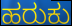
ಹರುಕು